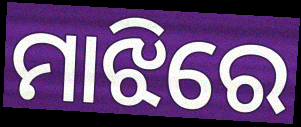
ମାଝିରେ